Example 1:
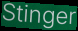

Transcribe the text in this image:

Stinger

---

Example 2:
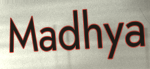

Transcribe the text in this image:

Madhya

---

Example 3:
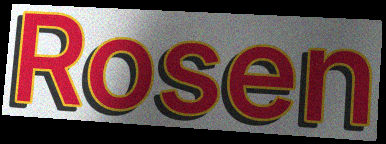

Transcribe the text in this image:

Rosen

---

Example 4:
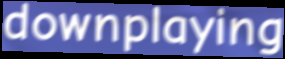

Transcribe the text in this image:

downplaying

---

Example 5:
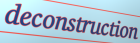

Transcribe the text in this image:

deconstruction